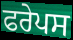
ਫਰੇਪਸ